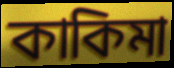
কাকিমা